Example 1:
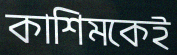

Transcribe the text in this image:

কাশিমকেই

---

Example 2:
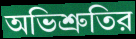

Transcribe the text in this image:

অভিশ্রুতির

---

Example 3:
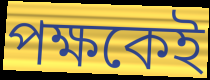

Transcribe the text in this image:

পক্ষকেই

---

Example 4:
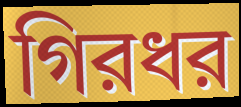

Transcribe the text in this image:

গিরধর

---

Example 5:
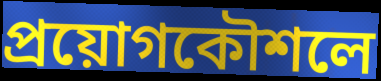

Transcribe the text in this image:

প্রয়োগকৌশলে